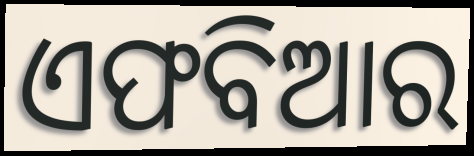
ଏଫବିଆର